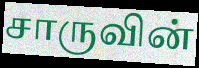
சாருவின்